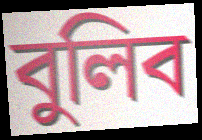
বুলিব